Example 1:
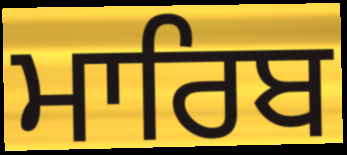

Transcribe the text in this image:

ਮਾਰਿਬ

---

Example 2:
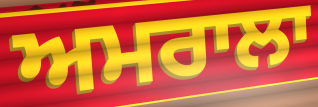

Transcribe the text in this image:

ਅਮਰਾਲਾ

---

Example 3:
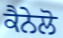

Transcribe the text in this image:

ਕੈਨੇਲੋ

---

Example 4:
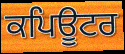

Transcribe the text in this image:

ਕਪਿਊਟਰ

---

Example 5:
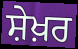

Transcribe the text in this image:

ਸ਼ੇਖ਼ਰ